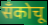
सँकोचू